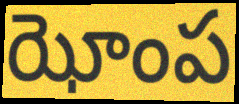
ఝోంప